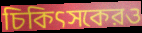
চিকিৎসকেরও